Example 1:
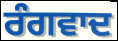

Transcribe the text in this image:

ਰੰਗਵਾਦ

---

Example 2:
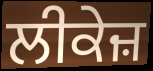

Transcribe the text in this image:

ਲੀਕੇਜ਼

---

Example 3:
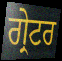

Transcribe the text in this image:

ਗ੍ਰੇਟਰ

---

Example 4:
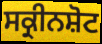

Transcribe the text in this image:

ਸਕ੍ਰੀਨਸ਼ੋਟ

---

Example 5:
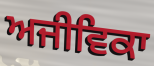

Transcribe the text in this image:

ਅਜੀਵਿਕਾ